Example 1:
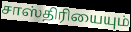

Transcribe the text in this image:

சாஸ்திரியையும்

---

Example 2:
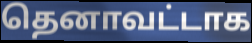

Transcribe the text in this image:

தெனாவட்டாக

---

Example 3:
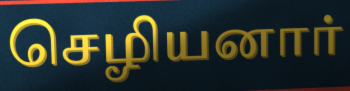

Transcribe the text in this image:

செழியனார்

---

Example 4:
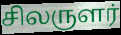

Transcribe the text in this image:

சிலருளர்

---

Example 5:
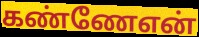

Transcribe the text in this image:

கண்ணேஎன்